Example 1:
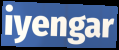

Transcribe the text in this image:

iyengar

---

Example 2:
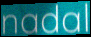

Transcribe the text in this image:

nadal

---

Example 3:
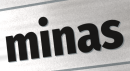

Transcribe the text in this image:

minas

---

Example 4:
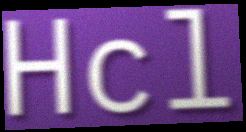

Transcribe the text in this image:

Hcl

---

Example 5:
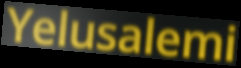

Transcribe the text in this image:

Yelusalemi